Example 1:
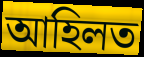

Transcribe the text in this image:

আহিলত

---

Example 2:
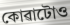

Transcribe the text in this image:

কোৱাটোও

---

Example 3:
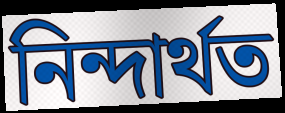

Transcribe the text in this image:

নিন্দাৰ্থত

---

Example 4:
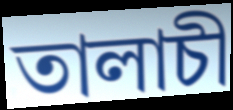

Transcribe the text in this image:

তালাচী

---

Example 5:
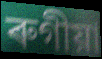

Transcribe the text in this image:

ৰুগীয়া